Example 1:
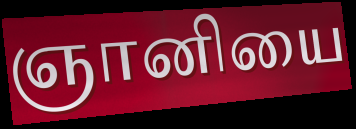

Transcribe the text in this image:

ஞானியை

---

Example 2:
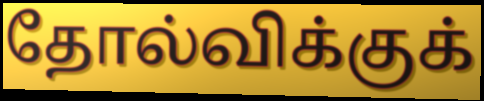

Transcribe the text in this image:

தோல்விக்குக்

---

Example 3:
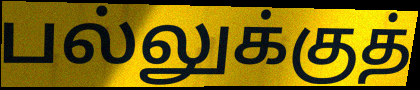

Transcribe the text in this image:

பல்லுக்குத்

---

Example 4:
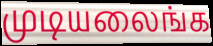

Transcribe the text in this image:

முடியலைங்க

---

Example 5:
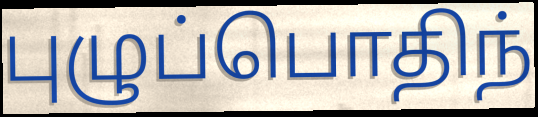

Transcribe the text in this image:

புழுப்பொதிந்